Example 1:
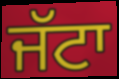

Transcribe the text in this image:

ਜੱਟਾ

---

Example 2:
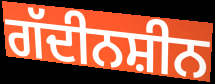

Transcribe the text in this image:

ਗੱਦੀਨਸ਼ੀਨ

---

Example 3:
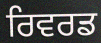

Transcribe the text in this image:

ਰਿਵਰਡ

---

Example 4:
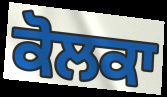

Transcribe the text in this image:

ਕੋਲਕਾ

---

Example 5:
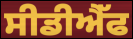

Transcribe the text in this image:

ਸੀਡੀਐੱਫ